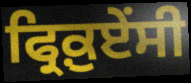
ਫ੍ਰਿਕ਼ੁਏਂਸੀ